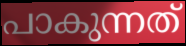
പാകുന്നത്